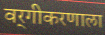
वर्गीकरणाला